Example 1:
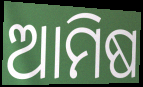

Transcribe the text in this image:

ଆମିଷ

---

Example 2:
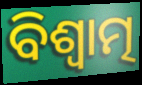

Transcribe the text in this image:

ବିଶ୍ୱାତ୍ମ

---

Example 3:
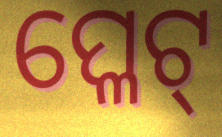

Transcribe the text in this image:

ପ୍ଳେଟ୍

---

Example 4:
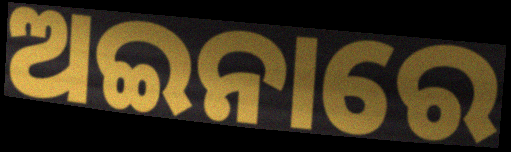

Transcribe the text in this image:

ଅଇନାରେ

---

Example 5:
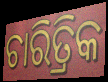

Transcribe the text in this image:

ଚାରିତ୍ରିକ